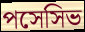
পসেসিভ